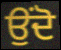
ਉਂਦੋ